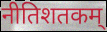
नीतिशतकम्